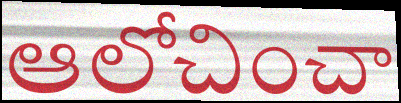
ఆలోచించా